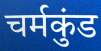
चर्मकुंड